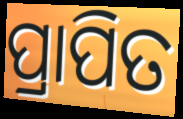
ପ୍ରାପିତ